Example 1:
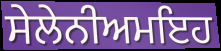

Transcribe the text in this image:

ਸੇਲੇਨੀਅਮਇਹ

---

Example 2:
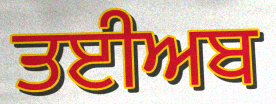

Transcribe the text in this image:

ਤਈਅਬ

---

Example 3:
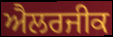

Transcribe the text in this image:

ਐਲਰਜੀਕ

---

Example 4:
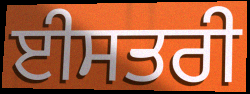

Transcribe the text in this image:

ਈਸਤਰੀ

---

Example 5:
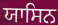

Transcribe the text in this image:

ਯਾਸਿਨ